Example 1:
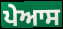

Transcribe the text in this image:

ਪੇਆਸ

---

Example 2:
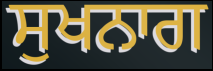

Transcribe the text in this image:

ਸੁਖਨਾਗ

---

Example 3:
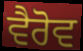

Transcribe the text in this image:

ਵੈਰੋਵ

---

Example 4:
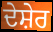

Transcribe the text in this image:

ਦੇਸ਼ੇਰ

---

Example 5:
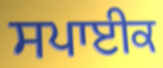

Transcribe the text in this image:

ਸਪਾਈਕ